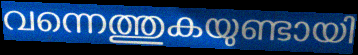
വന്നെത്തുകയുണ്ടായി